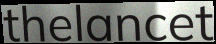
thelancet